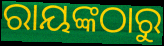
ରାୟଙ୍କଠାରୁ